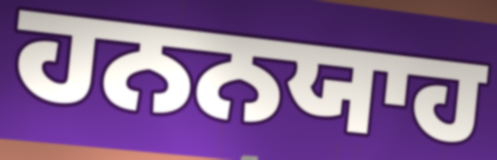
ਹਨਨਯਾਹ